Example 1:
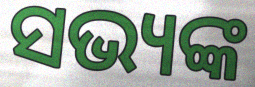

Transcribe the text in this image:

ସଭ୍ୟଙ୍କ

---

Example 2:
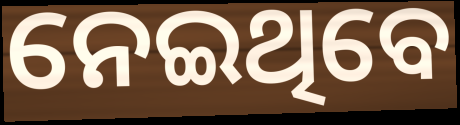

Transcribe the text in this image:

ନେଇଥିବେ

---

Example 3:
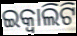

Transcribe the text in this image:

ଇକ୍ୱାଲିଟି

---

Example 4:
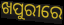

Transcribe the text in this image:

ଖପୁରୀରେ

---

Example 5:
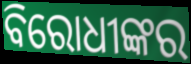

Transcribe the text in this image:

ବିରୋଧୀଙ୍କର